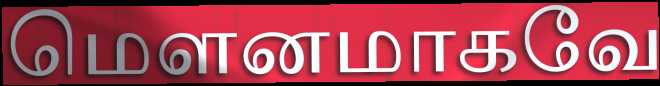
மெளனமாகவே